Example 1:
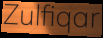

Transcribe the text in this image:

Zulfiqar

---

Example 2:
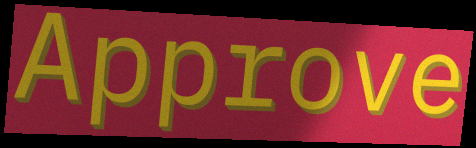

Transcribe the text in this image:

Approve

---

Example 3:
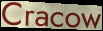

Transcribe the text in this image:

Cracow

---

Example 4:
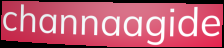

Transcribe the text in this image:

channaagide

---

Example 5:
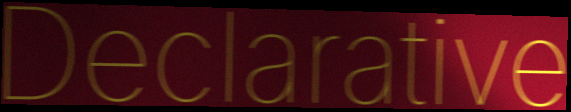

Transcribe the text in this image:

Declarative